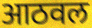
आठवल